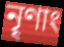
নৄণাং